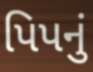
પિપનું